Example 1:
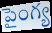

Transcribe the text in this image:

పైంగ్య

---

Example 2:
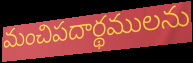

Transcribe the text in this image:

మంచిపదార్థములను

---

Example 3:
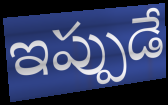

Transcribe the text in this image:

ఇప్పుడే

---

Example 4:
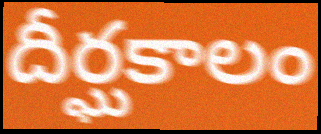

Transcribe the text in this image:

దీర్ఘకాలం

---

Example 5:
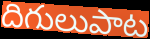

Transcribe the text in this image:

దిగులుపాట